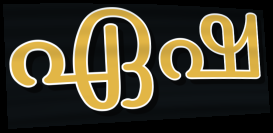
ഏഷ